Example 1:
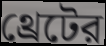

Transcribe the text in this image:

থ্রেটের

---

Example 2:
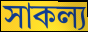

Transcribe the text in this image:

সাকল্য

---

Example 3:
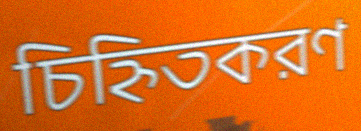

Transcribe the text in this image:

চিহ্নিতকরণ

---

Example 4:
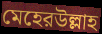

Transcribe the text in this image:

মেহেরউল্লাহ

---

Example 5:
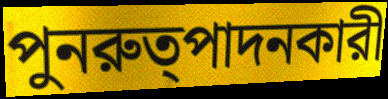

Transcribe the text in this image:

পুনরুত্পাদনকারী